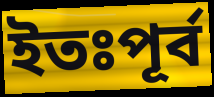
ইতঃপূর্ব